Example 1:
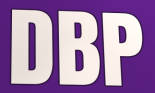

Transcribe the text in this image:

DBP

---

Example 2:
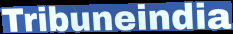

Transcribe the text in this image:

Tribuneindia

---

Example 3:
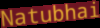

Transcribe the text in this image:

Natubhai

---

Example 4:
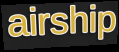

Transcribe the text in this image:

airship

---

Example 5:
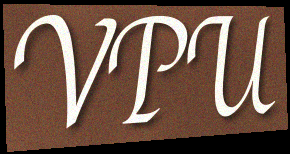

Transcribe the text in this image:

VPU